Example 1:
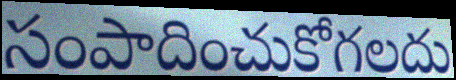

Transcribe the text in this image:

సంపాదించుకోగలదు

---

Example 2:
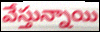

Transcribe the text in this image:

వేస్తున్నాయి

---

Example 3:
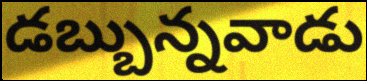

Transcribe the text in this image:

డబ్బున్నవాడు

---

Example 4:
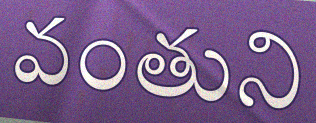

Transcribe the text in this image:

వంతుని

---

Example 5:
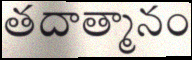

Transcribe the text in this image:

తదాత్మానం